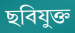
ছবিযুক্ত